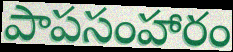
పాపసంహారం